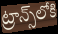
ట్రాన్స్‌లోకి